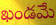
ఖండమే